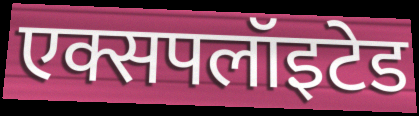
एक्सपलॉइटेड